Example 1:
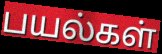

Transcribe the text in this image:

பயல்கள்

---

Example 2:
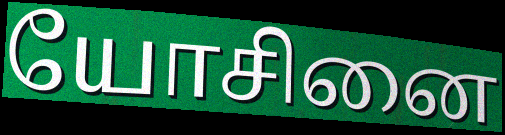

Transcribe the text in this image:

யோசினை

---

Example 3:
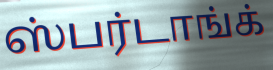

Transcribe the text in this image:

ஸ்பர்டாங்க்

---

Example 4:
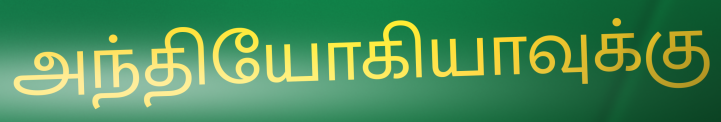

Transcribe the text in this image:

அந்தியோகியாவுக்கு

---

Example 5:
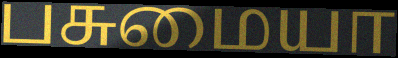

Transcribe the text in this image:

பசுமையா